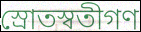
স্রোতস্বতীগণ